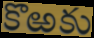
కొఱకు